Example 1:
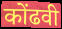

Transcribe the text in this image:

कोंढवी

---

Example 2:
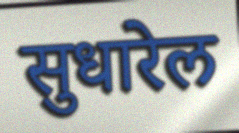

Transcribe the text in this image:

सुधारेल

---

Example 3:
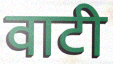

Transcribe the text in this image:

वाटी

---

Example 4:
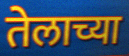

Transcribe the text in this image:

तेलाच्या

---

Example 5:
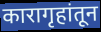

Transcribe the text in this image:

कारागृहांतून